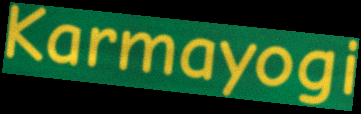
Karmayogi